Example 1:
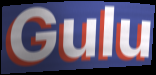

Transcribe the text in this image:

Gulu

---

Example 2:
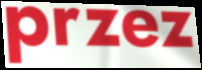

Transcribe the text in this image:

przez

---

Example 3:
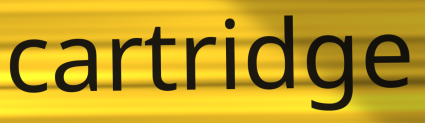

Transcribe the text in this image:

cartridge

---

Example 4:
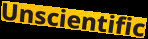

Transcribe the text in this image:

Unscientific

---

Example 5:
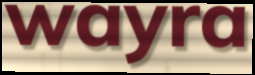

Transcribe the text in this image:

wayra